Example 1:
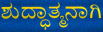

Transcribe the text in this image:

ಶುದ್ಧಾತ್ಮನಾಗಿ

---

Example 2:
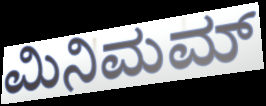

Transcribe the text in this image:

ಮಿನಿಮಮ್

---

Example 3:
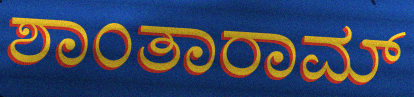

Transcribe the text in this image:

ಶಾಂತಾರಾಮ್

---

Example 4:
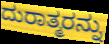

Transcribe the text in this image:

ದುರಾತ್ಮರನ್ನು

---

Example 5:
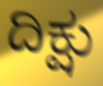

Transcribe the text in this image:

ದಿಕ್ಷು